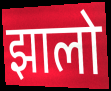
झालो